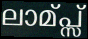
ലാമ്പ്സ്